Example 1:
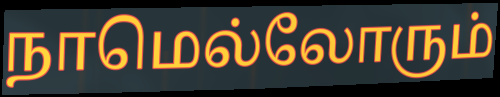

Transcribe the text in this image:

நாமெல்லோரும்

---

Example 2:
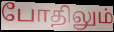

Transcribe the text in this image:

போதிலும்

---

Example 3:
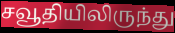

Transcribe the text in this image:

சவூதியிலிருந்து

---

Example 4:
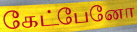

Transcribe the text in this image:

கேட்பேனோ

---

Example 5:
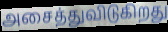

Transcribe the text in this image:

அசைத்துவிடுகிறது